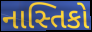
નાસ્તિકો